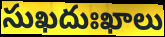
సుఖదుఃఖాలు